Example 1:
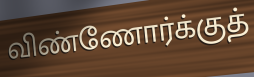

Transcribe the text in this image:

விண்ணோர்க்குத்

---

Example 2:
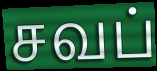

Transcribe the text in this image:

சவப்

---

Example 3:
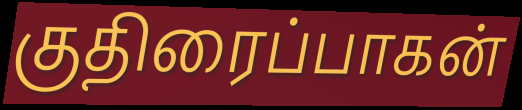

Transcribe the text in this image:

குதிரைப்பாகன்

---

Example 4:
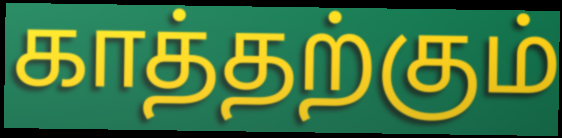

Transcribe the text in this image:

காத்தற்கும்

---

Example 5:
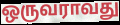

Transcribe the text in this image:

ஒருவராவது